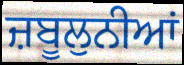
ਜ਼ਬੂਲੁਨੀਆਂ